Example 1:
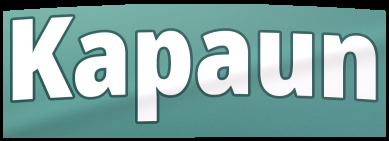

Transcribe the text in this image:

Kapaun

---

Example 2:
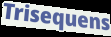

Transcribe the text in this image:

Trisequens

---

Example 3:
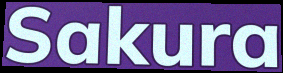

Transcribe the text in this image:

Sakura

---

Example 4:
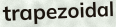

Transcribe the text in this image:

trapezoidal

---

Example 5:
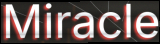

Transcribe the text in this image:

Miracle